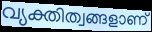
വ്യക്തിത്വങ്ങളാണ്